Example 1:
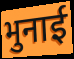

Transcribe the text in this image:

भुनाई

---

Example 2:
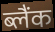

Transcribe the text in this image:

ब्लैंक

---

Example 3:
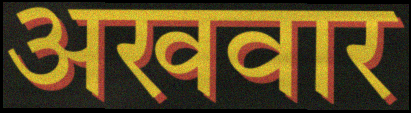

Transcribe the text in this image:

अखवार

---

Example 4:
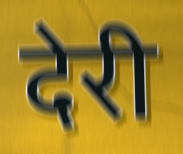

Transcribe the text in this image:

देरी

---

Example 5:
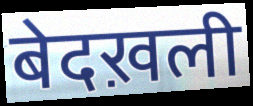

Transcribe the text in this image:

बेदख़ली